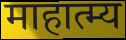
माहात्म्य